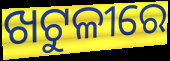
ଖଟୁଳୀରେ